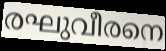
രഘുവീരനെ